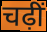
चढ़ीं